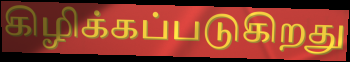
கிழிக்கப்படுகிறது